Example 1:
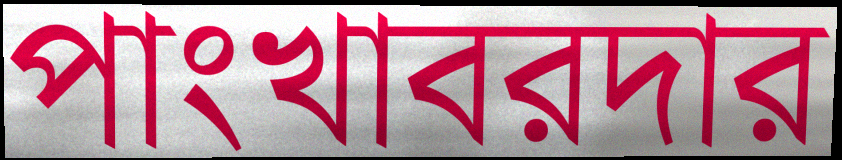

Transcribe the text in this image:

পাংখাবরদার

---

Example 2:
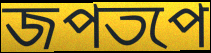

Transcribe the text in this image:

জপতপে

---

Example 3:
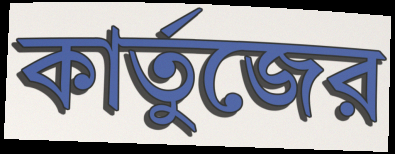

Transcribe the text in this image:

কার্তুজের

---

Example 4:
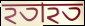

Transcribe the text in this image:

হতাহত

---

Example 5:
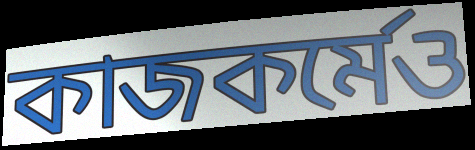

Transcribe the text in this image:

কাজকর্মেও